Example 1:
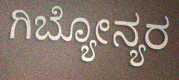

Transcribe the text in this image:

ಗಿಬ್ಯೋನ್ಯರ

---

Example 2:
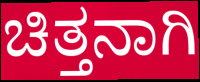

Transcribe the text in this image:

ಚಿತ್ತನಾಗಿ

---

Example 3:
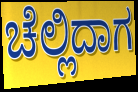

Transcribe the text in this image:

ಚೆಲ್ಲಿದಾಗ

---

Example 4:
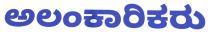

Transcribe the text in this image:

ಅಲಂಕಾರಿಕರು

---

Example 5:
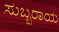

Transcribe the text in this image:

ಸುಬ್ಬರಾಯ